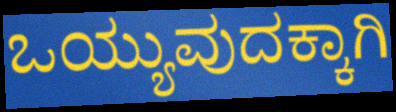
ಒಯ್ಯುವುದಕ್ಕಾಗಿ